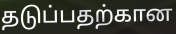
தடுப்பதற்கான